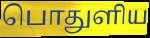
பொதுளிய